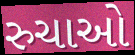
રુચાઓ